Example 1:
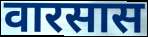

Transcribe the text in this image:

वारसास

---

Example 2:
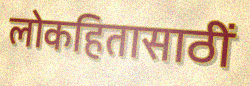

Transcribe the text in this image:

लोकहितासाठीं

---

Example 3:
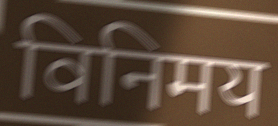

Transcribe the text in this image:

विनिमय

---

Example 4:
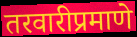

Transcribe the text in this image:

तरवारीप्रमाणे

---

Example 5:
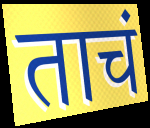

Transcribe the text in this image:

ताचं